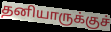
தனியாருக்குச்